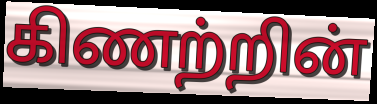
கிணற்றின்